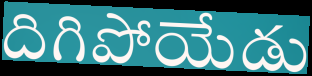
దిగిపోయేడు